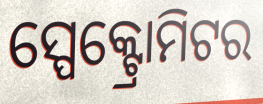
ସ୍ପେକ୍ଟ୍ରୋମିଟର